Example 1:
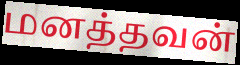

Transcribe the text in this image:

மனத்தவன்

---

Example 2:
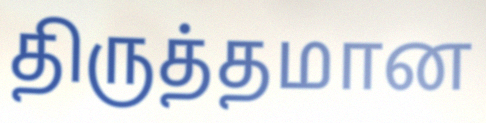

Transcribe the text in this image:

திருத்தமான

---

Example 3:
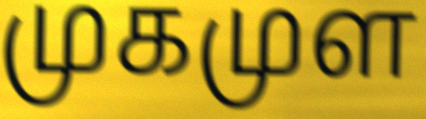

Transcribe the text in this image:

முகமுள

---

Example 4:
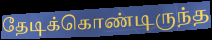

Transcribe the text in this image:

தேடிக்கொண்டிருந்த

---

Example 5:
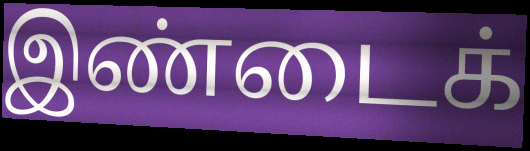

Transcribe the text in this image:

இண்டைக்